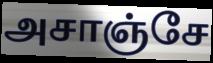
அசாஞ்சே